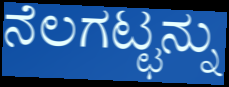
ನೆಲಗಟ್ಟನ್ನು